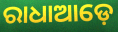
ରାଧାଆଡ଼େ